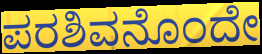
ಪರಶಿವನೊಂದೇ